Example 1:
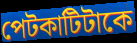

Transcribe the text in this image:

পেটকাটিটাকে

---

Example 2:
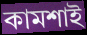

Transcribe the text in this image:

কামশাই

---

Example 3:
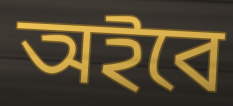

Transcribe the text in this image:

অইবে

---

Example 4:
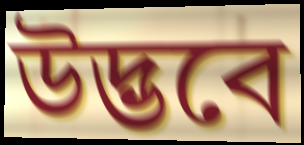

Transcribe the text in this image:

উদ্ভবে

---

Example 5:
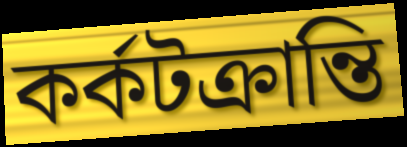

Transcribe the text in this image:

কর্কটক্রান্তি